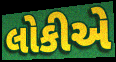
લોકીએ